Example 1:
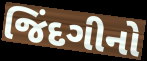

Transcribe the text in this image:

જિંદગીનો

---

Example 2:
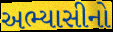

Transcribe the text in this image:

અભ્યાસીનો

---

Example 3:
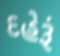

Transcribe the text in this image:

દહેરૂં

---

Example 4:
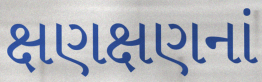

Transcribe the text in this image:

ક્ષણક્ષણનાં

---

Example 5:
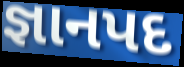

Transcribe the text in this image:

જ્ઞાનપદ